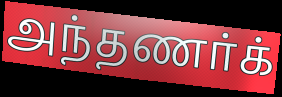
அந்தணர்க்